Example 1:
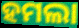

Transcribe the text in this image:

ହମଲା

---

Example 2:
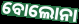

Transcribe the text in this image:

ବୋଲୋନା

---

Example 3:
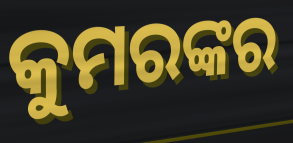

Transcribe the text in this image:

କୁମରଙ୍କର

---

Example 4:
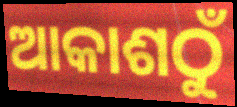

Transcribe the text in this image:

ଆକାଶଠୁଁ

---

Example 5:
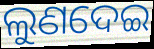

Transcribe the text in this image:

ଲୁଣଦେଇ